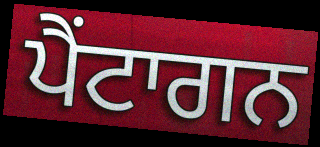
ਪੈਂਟਾਗਨ